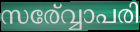
സര്വ്വോപരി